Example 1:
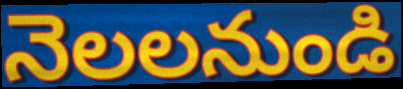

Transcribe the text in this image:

నెలలనుండి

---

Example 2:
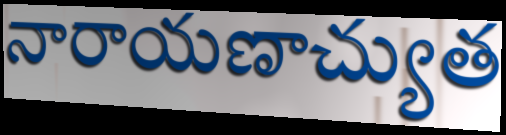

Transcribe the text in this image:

నారాయణాచ్యుత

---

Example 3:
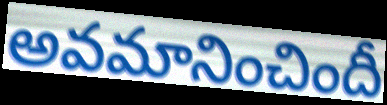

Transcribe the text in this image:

అవమానించిందీ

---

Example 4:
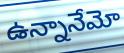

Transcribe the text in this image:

ఉన్నానేమో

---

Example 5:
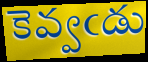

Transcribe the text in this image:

కెవ్వఁడు